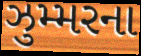
ઝુમ્મરના